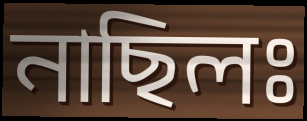
নাছিলঃ